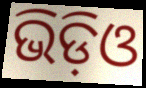
ଭିଡ଼ିଓ